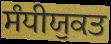
ਸੰਧੀਯੁਕਤ